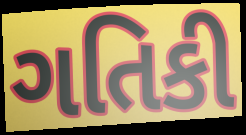
ગતિકી